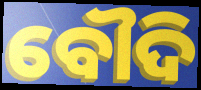
ବୌଦି